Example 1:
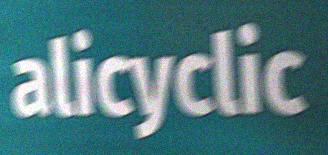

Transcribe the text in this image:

alicyclic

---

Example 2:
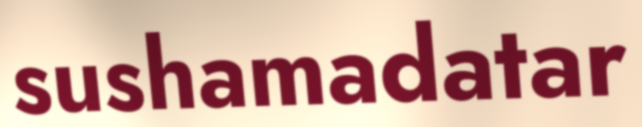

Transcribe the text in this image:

sushamadatar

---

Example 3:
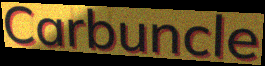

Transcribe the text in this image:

Carbuncle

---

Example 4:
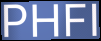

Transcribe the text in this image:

PHFI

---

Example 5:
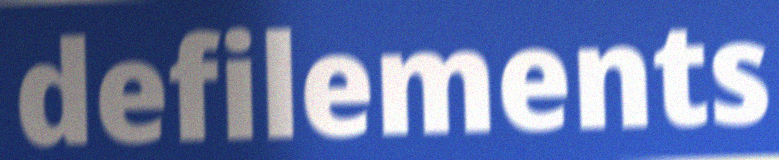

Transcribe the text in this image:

defilements